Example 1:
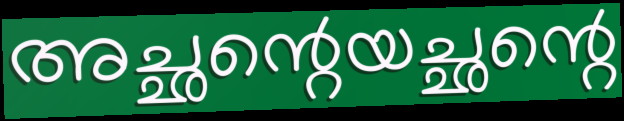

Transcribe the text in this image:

അച്ഛന്റെയച്ഛന്റെ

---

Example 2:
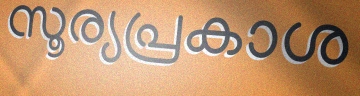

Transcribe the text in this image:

സൂര്യപ്രകാശ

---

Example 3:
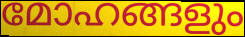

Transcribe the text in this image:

മോഹങ്ങളും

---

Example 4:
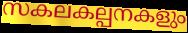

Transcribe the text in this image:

സകലകല്പനകളും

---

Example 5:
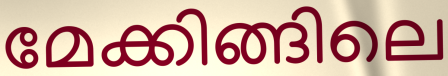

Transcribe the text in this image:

മേക്കിങ്ങിലെ